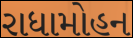
રાધામોહન